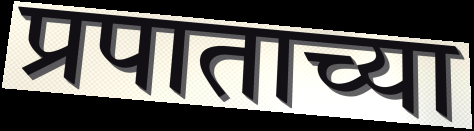
प्रपाताच्या